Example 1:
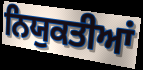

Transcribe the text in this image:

ਨਿਯੁਕਤੀਆਂ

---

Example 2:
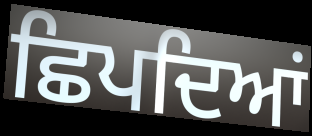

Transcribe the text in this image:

ਛਿਪਦਿਆਂ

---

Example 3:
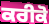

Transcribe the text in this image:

ਕਰੀਕੋ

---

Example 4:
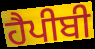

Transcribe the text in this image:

ਹੈਪੀਬੀ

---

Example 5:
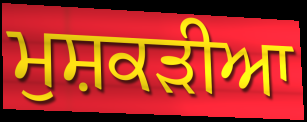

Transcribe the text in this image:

ਮੁਸ਼ਕੜੀਆ